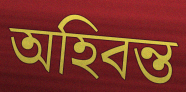
অহিবন্ত